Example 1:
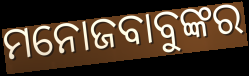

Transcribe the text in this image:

ମନୋଜବାବୁଙ୍କର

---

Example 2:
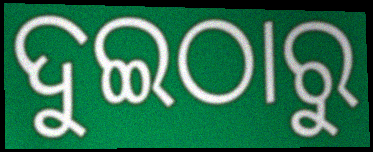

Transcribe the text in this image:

ଦୁଇଠାରୁ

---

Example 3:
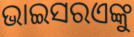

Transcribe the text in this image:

ଭାଇସରଏଙ୍କୁ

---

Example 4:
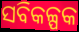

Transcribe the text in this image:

ସବିକଳ୍ପକ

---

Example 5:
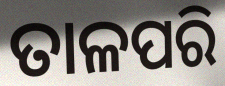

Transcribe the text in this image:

ତାଳପରି